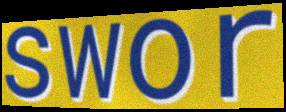
swor